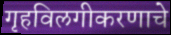
गृहविलगीकरणाचे